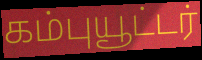
கம்புயூட்டர்